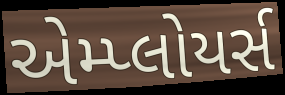
એમ્પ્લોયર્સ